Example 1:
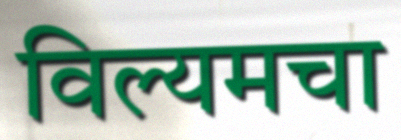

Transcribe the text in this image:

विल्यमचा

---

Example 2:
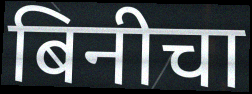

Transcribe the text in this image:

बिनीचा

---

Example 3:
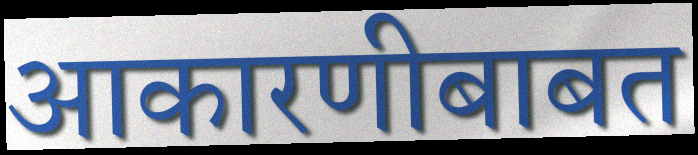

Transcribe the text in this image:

आकारणीबाबत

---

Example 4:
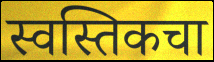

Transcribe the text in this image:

स्वस्तिकचा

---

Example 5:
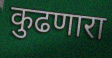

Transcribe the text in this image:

कुढणारा